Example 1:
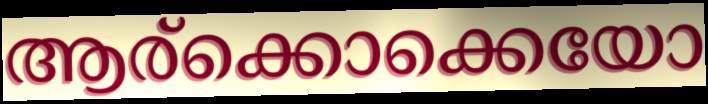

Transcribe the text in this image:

ആര്ക്കൊക്കെയോ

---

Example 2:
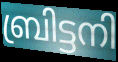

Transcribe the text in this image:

ബ്രിട്ടനി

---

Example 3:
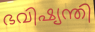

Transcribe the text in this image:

ഭവിഷ്യന്തി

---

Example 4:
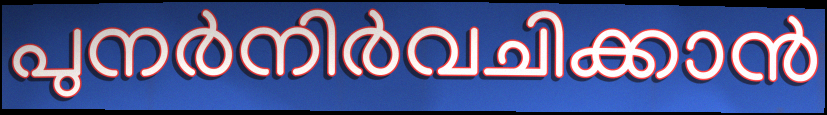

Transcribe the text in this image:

പുനർനിർവചിക്കാൻ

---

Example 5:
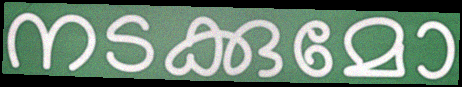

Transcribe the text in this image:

നടക്കുമോ